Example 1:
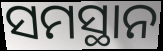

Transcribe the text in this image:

ସମସ୍ଥାନ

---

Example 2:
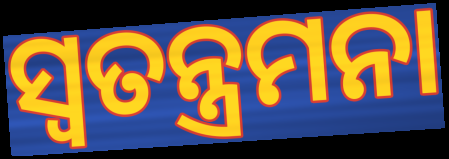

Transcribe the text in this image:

ସ୍ୱତନ୍ତ୍ରମନା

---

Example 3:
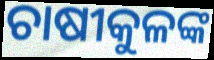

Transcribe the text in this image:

ଚାଷୀକୁଳଙ୍କ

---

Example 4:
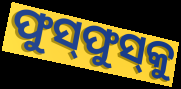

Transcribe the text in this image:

ଫୁସ୍‌ଫୁସ୍‌କୁ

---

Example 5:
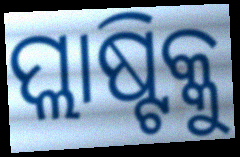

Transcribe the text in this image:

ପ୍ଲାଷ୍ଟିକ୍କୁ